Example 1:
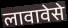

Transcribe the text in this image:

लावावेसे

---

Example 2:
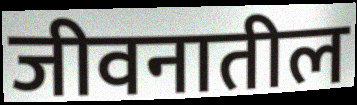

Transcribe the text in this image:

जीवनातील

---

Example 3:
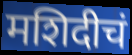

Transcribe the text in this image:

मशिदीचं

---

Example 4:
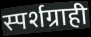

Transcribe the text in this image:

स्पर्शग्राही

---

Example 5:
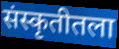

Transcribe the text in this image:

संस्कृतीतला